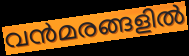
വൻമരങ്ങളിൽ